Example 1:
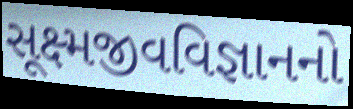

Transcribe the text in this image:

સૂક્ષ્મજીવવિજ્ઞાનનો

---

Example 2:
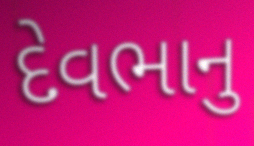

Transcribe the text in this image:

દેવભાનુ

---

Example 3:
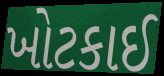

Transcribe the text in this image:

ખોટકાઈ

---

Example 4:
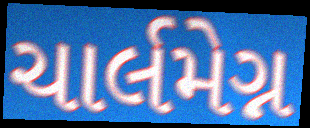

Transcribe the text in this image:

ચાર્લમેગ્ન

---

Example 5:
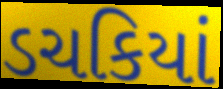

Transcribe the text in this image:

ડચકિયાં